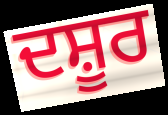
ਦਸ਼ੂਰ